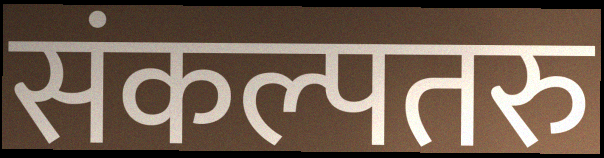
संकल्पतरु